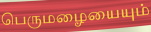
பெருமழையையும்